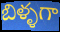
బిళ్ళగా